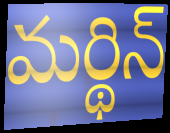
మర్థిన్